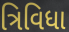
ત્રિવિધા